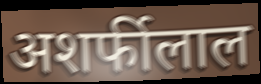
अशर्फीलाल